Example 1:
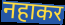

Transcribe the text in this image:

नहाकर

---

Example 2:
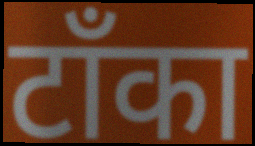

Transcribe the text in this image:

टाँका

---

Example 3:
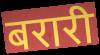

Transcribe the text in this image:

बरारी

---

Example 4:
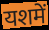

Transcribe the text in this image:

यशमें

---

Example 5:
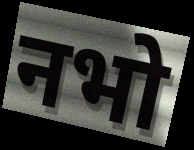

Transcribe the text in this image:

नभो